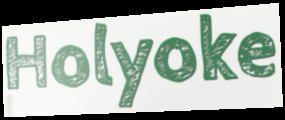
Holyoke